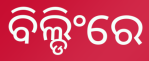
ବିଲ୍ଡିଂରେ